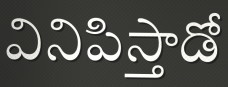
వినిపిస్తాడో